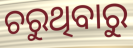
ଚରୁଥିବାରୁ